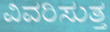
ವಿವರಿಸುತ್ತ